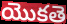
యొకతె